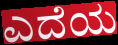
ಎದೆಯ